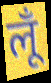
लूँ